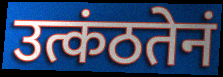
उत्कंठतेनं